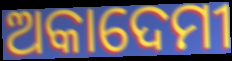
ଅକାଦେମୀ